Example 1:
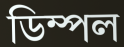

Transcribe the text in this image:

ডিম্পল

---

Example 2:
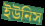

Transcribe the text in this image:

ইউনিস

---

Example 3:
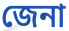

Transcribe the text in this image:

জেনা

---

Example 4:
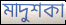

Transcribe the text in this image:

মাদুশকা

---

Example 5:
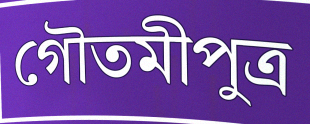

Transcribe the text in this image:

গৌতমীপুত্র